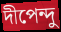
দীপেন্দু